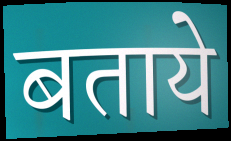
बताये